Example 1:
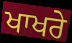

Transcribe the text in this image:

ਖਾਖਰੇ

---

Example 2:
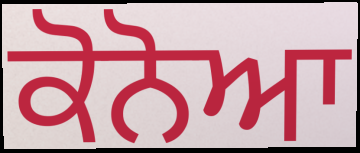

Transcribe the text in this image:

ਕੋਨੋਆ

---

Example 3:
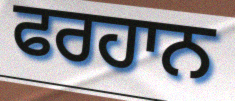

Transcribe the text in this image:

ਫਰਹਾਨ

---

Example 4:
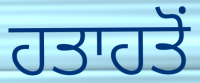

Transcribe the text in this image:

ਹਤਾਹਤੋਂ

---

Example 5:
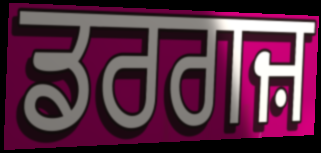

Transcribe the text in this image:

ਡਰਗਜ਼